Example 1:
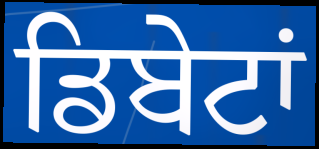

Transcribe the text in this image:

ਡਿਬੇਟਾਂ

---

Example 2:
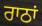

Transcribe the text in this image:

ਰਾਠਾਂ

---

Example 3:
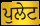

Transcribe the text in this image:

ਪੁਲੇਟ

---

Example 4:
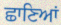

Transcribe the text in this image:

ਛਾਣਿਆਂ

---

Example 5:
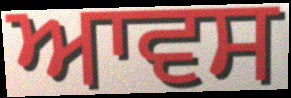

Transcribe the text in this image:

ਆਵਸ